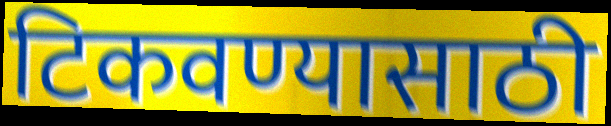
टिकवण्यासाठी